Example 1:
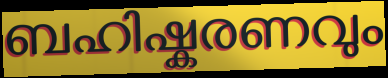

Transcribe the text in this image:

ബഹിഷ്കരണവും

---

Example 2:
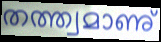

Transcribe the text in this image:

തത്ത്വമാണു്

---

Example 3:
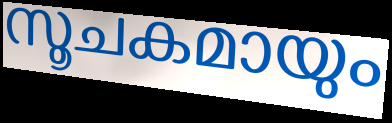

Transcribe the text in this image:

സൂചകമായും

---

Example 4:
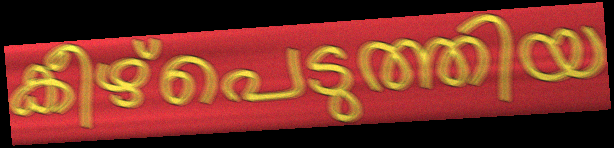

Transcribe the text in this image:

കീഴ്പെടുത്തിയ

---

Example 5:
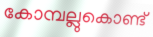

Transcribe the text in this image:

കോമ്പല്ലുകൊണ്ട്